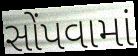
સોંપવામાં